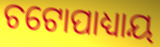
ଚଟୋପାଧ୍ୟାୟ